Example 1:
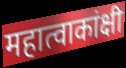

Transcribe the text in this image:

महात्वाकांक्षी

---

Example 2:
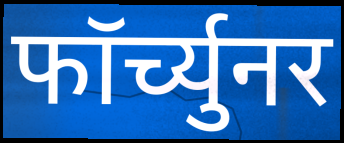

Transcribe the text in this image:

फॉर्च्युनर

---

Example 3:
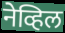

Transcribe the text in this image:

नेव्हिल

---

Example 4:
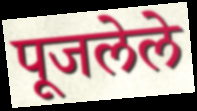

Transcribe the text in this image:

पूजलेले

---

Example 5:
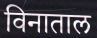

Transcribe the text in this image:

विनाताल